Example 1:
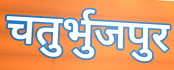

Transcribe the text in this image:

चतुर्भुजपुर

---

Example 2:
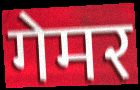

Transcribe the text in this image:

गेमर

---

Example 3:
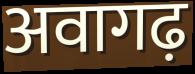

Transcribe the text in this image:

अवागढ़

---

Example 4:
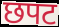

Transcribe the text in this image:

छपट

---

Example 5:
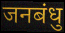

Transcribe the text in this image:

जनबंधु